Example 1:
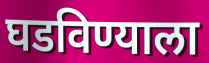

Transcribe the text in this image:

घडविण्याला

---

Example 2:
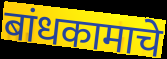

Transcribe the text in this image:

बांधकामाचे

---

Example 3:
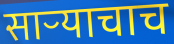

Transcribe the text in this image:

साऱ्याचाच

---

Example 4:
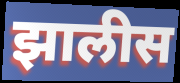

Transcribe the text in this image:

झालीस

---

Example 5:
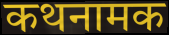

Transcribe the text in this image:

कथनामक